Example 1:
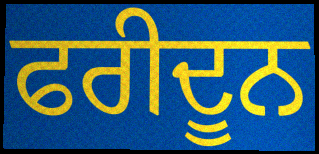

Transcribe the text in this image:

ਫਰੀਦੂਨ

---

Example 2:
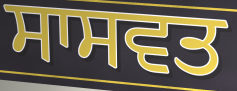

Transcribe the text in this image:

ਸਾਸਵਤ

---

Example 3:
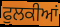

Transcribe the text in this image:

ਫੁਲਕੀਆਂ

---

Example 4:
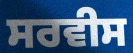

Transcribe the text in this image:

ਸਰਵੀਸ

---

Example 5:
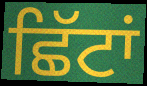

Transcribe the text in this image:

ਛਿੱਟਾਂ